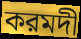
করমদী